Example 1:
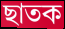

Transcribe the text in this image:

ছাতক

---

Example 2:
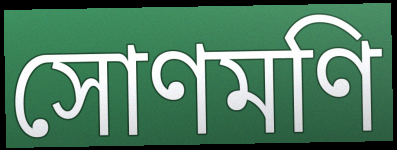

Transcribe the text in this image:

সোণমণি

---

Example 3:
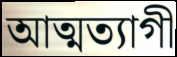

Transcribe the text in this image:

আত্মত্যাগী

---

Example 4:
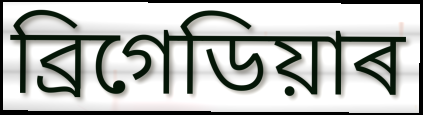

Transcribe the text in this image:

ব্ৰিগেডিয়াৰ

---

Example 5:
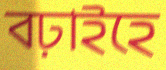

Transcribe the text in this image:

বঢ়াইহে